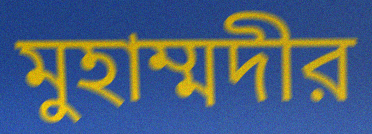
মুহাম্মদীর